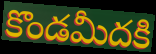
కొండమీదకి